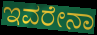
ಇವರೇನಾ